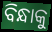
ବିନ୍ଧାକୁ